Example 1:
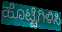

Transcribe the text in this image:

ಹೊಟ್ಟೆಗಿಳಿಸಿ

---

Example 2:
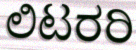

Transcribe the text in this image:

ಲಿಟರರಿ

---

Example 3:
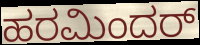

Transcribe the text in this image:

ಹರಮಿಂದರ್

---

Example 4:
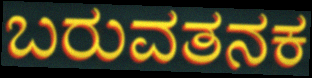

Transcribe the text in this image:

ಬರುವತನಕ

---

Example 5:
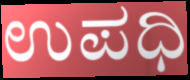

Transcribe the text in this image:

ಉಪಧಿ